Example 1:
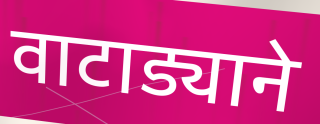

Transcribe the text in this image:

वाटाड्याने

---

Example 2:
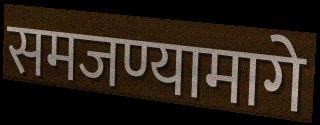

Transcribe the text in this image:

समजण्यामागे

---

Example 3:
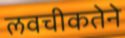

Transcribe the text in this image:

लवचीकतेने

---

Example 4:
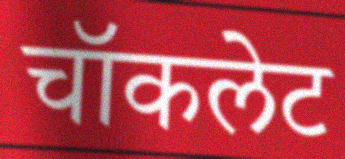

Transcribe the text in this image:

चॉकलेट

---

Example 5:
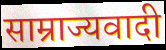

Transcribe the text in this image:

साम्राज्यवादी